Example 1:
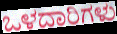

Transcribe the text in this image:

ಒಳದಾರಿಗಳು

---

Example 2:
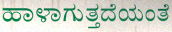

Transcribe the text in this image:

ಹಾಳಾಗುತ್ತದೆಯಂತೆ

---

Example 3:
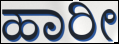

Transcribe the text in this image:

ಹಾರೀ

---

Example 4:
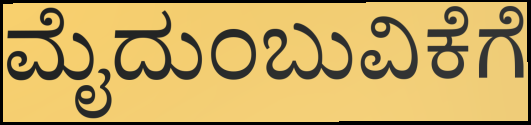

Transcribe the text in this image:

ಮೈದುಂಬುವಿಕೆಗೆ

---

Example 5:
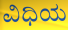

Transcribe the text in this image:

ವಿಧಿಯ